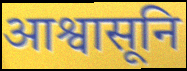
आश्वासूनि